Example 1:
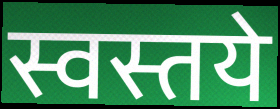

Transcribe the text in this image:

स्वस्तये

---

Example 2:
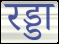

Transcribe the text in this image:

रड्डा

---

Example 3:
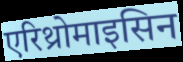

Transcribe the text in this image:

एरिथ्रोमाइसिन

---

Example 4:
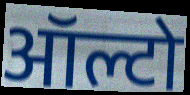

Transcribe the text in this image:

ऑल्टो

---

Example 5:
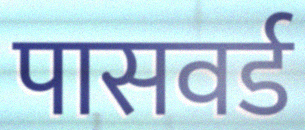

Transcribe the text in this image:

पासवर्ड